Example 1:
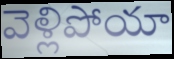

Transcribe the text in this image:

వెళ్లిపోయా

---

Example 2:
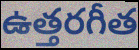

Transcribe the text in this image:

ఉత్తరగీత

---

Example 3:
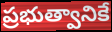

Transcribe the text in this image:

ప్రభుత్వానికే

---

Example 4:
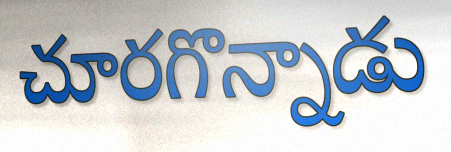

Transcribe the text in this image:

చూరగొన్నాడు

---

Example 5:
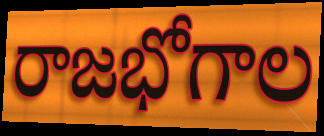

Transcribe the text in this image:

రాజభోగాల